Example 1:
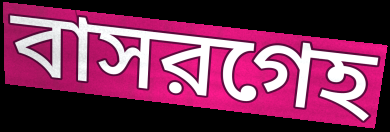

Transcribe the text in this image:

বাসরগেহ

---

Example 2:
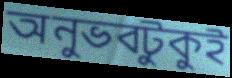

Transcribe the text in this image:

অনুভবটুকুই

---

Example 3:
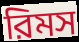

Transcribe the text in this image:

রিমস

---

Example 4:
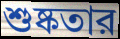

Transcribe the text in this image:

শুষ্কতার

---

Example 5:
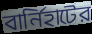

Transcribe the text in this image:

বার্নিহাটের